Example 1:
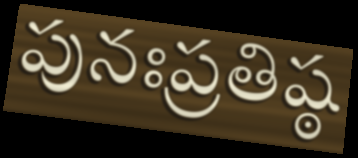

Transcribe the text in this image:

పునఃప్రతిష్ఠ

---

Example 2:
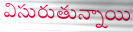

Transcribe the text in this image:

విసురుతున్నాయి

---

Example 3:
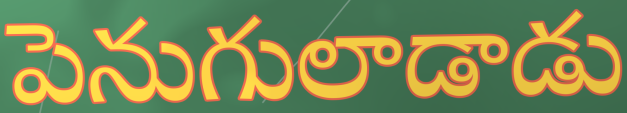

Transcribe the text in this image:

పెనుగులాడాడు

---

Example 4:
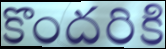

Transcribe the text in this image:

కొందరికి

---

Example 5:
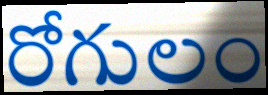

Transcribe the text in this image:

రోగులం